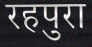
रहपुरा